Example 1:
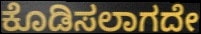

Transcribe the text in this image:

ಕೊಡಿಸಲಾಗದೇ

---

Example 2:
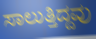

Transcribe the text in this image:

ಸಾಲುತ್ತಿದ್ದವು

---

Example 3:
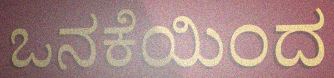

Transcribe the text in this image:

ಒನಕೆಯಿಂದ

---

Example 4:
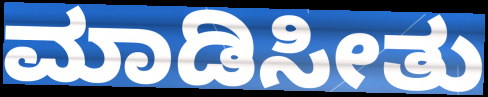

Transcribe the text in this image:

ಮಾಡಿಸೀತು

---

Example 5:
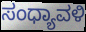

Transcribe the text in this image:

ಸಂಧ್ಯಾವಳಿ